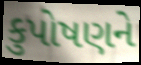
કુપોષણને